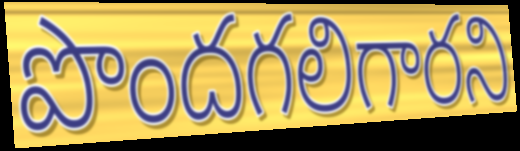
పొందగలిగారని